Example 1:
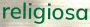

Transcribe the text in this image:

religiosa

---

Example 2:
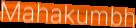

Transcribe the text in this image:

Mahakumbh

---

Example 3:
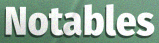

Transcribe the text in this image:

Notables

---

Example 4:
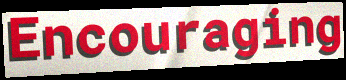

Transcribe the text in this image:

Encouraging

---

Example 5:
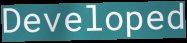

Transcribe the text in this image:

Developed